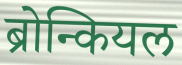
ब्रोन्कियल